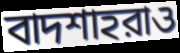
বাদশাহরাও